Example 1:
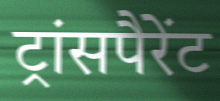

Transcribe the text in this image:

ट्रांसपैरेंट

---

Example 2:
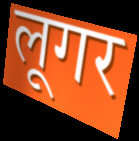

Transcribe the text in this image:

लूगर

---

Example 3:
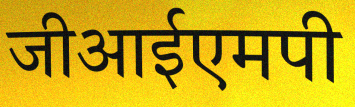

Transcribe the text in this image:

जीआईएमपी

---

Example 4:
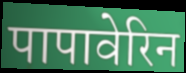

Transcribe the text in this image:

पापावेरिन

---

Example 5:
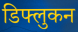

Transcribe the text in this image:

डिफ्लुकन